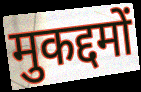
मुकद्दमों